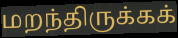
மறந்திருக்கக்